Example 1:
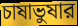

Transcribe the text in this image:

চাষাভুষার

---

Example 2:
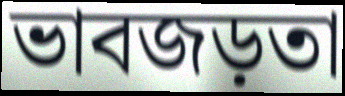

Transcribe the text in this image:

ভাবজড়তা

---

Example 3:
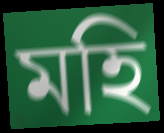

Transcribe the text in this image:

মহি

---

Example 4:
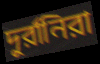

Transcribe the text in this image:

দুর্রানিরা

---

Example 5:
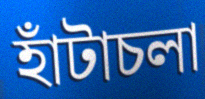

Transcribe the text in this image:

হাঁটাচলা